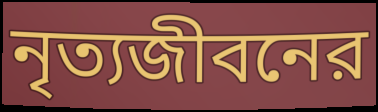
নৃত্যজীবনের